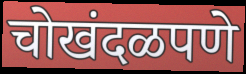
चोखंदळपणे